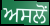
ਅਸਲੋਂ